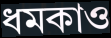
ধমকাও